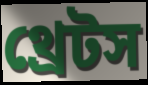
থ্রেটস